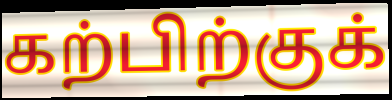
கற்பிற்குக்